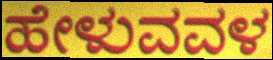
ಹೇಳುವವಳ